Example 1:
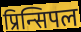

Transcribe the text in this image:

प्रिन्सिपल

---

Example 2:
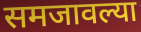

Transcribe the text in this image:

समजावल्या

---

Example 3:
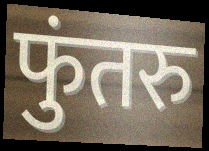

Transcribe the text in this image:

फुंतरु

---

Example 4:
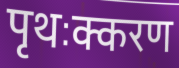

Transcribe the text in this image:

पृथःक्करण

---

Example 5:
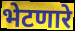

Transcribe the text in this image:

भेटणारे